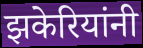
झकेरियांनी